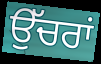
ਉੱਚਰਾਂ